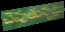
చెపుతున్నట్లు